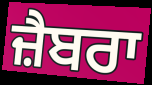
ਜ਼ੈਬਰਾ